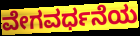
ವೇಗವರ್ಧನೆಯ